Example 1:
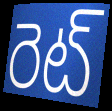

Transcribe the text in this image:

రెట్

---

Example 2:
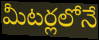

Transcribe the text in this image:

మీటర్లలోనే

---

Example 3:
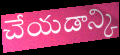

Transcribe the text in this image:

చేయడాన్కి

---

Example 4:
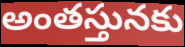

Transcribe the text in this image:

అంతస్తునకు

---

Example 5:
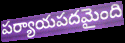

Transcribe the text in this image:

పర్యాయపదమైంది